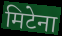
मिटेना